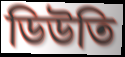
ডিউতি